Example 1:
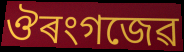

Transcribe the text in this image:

ঔৰংগজেৱ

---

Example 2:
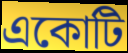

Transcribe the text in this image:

একোটি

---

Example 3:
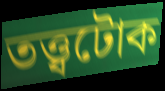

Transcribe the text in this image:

তত্ত্বটোক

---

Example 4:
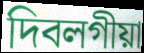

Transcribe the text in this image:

দিবলগীয়া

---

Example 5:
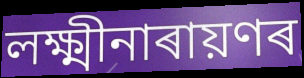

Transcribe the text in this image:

লক্ষ্মীনাৰায়ণৰ